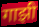
गाझी